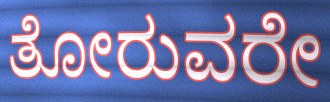
ತೋರುವರೇ